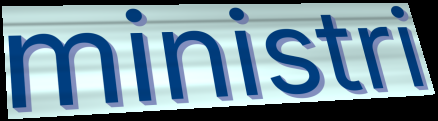
ministri